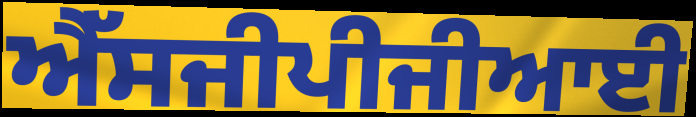
ਐੱਸਜੀਪੀਜੀਆਈ